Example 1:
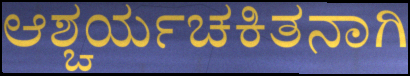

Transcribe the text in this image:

ಆಶ್ಚರ್ಯಚಕಿತನಾಗಿ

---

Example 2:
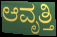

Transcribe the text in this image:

ಆವೃತ್ತಿ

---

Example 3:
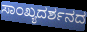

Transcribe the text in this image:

ಸಾಂಖ್ಯದರ್ಶನದ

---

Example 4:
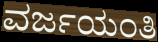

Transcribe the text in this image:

ವರ್ಜಯಂತಿ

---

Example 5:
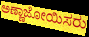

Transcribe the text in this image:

ಅಣ್ಣಾಜೋಯಿಸರು